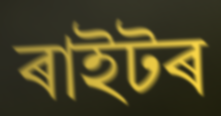
ৰাইটৰ